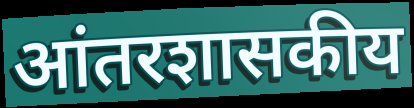
आंतरशासकीय